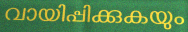
വായിപ്പിക്കുകയും